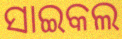
ସାଇକଲ